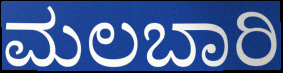
ಮಲಬಾರಿ